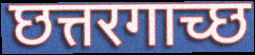
छत्तरगाच्छ